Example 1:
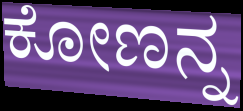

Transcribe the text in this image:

ಕೋಣನ್ನ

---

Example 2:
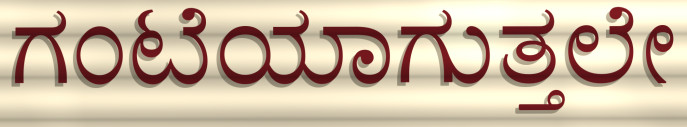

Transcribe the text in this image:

ಗಂಟೆಯಾಗುತ್ತಲೇ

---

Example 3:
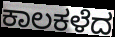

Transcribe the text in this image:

ಕಾಲಕಳೆದ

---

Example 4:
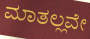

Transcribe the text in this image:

ಮಾತಲ್ಲವೇ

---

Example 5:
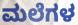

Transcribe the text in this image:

ಮಲೆಗಳ